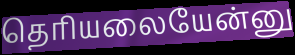
தெரியலையேன்னு